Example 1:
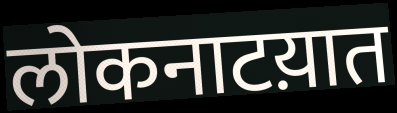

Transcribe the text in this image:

लोकनाटय़ात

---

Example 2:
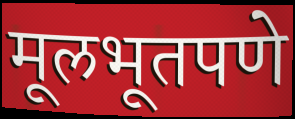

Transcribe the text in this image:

मूलभूतपणे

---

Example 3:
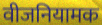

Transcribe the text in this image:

वीजनियामक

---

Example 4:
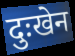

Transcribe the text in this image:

दुःखेन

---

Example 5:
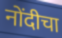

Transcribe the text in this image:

नोंदीचा